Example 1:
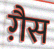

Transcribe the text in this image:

ग़ैस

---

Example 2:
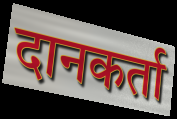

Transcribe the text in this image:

दानकर्ता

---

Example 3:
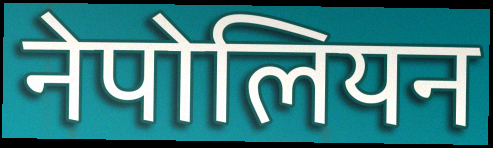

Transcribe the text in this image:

नेपोलियन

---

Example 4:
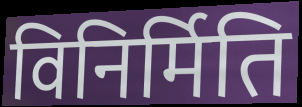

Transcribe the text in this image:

विनिर्मिति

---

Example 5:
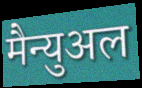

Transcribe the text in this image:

मैन्युअल